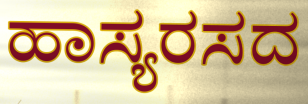
ಹಾಸ್ಯರಸದ